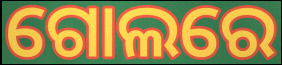
ଗୋଲରେ